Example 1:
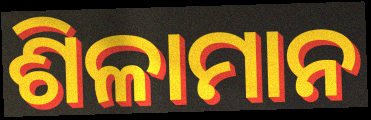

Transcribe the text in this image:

ଶିଳାମାନ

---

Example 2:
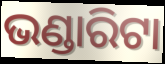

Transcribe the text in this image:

ଭଣ୍ଡାରିଟା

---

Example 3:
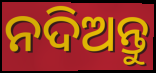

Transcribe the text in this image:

ନଦିଅନ୍ତୁ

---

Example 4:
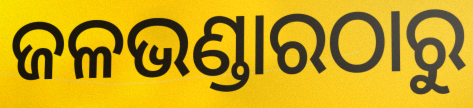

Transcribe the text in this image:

ଜଳଭଣ୍ଡାରଠାରୁ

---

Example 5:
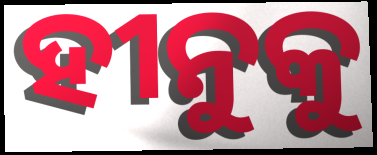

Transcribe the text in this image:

ହୀନୁକୁ